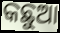
କଛୁଆ